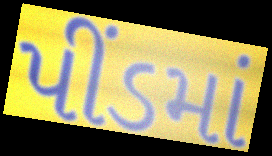
પીંડમાં